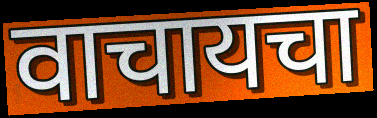
वाचायचा